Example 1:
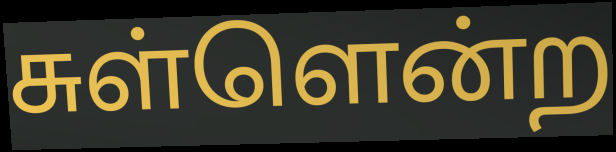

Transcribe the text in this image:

சுள்ளென்ற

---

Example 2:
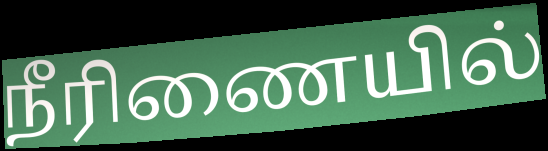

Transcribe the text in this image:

நீரிணையில்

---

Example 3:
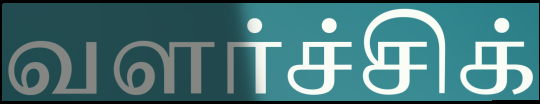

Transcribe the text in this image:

வளர்ச்சிக்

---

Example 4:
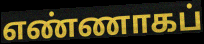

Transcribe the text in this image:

எண்ணாகப்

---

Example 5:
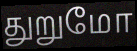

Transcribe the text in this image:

துறுமோ